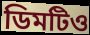
ডিমটিও